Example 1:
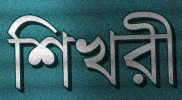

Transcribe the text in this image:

শিখরী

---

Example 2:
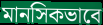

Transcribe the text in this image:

মানসিকভাবে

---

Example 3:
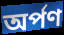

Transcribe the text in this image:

অর্পণ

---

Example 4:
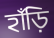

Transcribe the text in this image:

হাঁড়ি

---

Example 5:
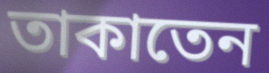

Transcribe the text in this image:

তাকাতেন